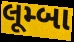
લૂમ્બા